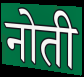
नोती